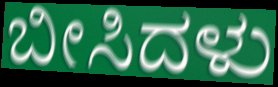
ಬೀಸಿದಳು